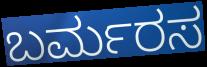
ಬರ್ಮರಸ